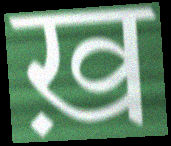
ख़